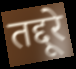
तद्दूरे